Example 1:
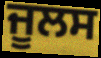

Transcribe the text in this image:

ਜੂਲਸ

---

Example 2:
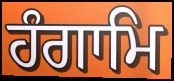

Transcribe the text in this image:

ਹੰਗਾਮਿ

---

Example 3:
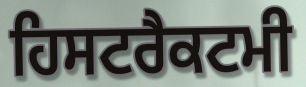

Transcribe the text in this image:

ਹਿਸਟਰੈਕਟਮੀ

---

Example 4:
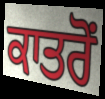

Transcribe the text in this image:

ਕਾਤਰੋੰ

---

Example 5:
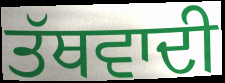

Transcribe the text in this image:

ਤੱਥਵਾਦੀ